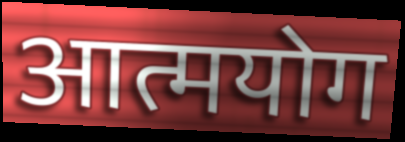
आत्मयोग